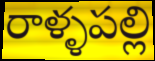
రాళ్ళపల్లి